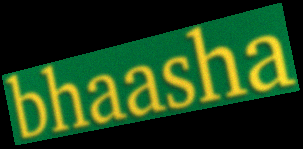
bhaasha